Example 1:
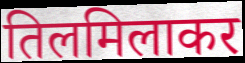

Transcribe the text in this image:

तिलमिलाकर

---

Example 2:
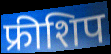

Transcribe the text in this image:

फ्रीशिप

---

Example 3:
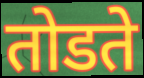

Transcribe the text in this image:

तोडते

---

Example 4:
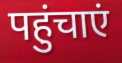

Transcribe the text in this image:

पहुंचाएं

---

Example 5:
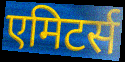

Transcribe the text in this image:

एमिटर्स